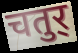
चतुर्